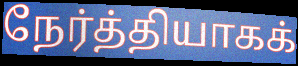
நேர்த்தியாகக்